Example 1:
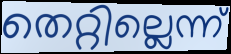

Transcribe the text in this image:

തെറ്റില്ലെന്ന്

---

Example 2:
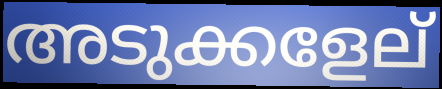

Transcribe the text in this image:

അടുക്കളേല്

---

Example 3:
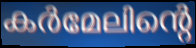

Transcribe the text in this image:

കർമേലിന്റെ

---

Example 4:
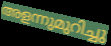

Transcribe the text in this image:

അളന്നുമുറിച്ചു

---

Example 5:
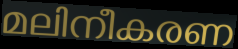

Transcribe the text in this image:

മലിനീകരണ